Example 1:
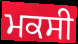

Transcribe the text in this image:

ਮਕਸੀ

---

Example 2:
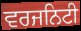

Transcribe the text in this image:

ਵਰਜਨਿਟੀ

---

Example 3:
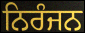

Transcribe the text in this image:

ਨਿਰੰਜਨ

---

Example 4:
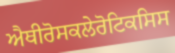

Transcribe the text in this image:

ਐਥੀਰੋਸਕਲੇਰੋਟਿਕਸਿਸ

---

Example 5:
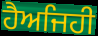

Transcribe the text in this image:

ਹੈਅਜਿਹੀ